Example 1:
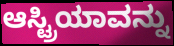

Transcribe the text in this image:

ಆಸ್ಟ್ರಿಯಾವನ್ನು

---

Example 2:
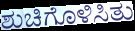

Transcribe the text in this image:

ಶುಚಿಗೊಳಿಸಿತು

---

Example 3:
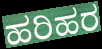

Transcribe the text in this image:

ಹರಿಹರ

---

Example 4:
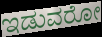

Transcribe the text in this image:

ಇಡುವರೋ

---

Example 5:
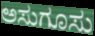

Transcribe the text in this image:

ಅಸುಗೂಸು